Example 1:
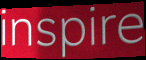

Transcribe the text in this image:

inspire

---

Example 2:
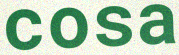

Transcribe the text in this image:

cosa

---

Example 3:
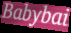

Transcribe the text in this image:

Babybai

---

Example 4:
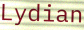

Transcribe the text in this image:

Lydian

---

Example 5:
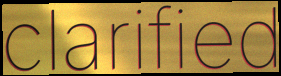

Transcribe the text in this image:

clarified